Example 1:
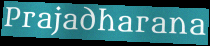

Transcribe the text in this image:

Prajadharana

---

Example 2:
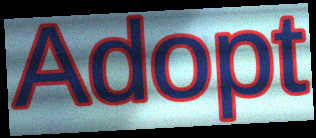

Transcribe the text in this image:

Adopt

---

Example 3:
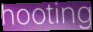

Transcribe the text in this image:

hooting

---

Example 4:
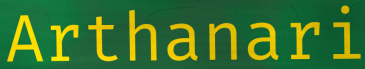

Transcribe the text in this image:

Arthanari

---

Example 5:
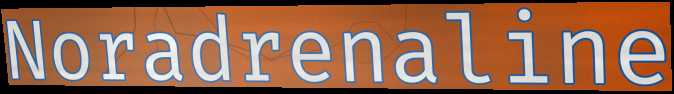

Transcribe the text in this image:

Noradrenaline